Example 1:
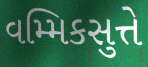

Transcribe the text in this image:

વમ્મિકસુત્તે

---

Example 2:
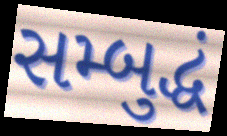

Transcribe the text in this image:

સમ્બુદ્ધં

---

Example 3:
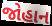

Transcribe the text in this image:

જોહાન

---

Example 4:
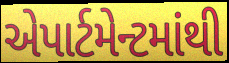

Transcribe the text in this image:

એપાર્ટમેન્ટમાંથી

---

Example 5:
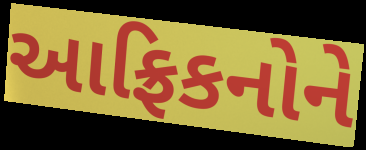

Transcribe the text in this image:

આફ્રિકનોને